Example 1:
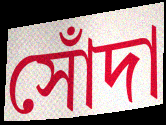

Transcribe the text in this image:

সোঁদা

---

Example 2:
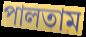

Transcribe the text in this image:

পালতাম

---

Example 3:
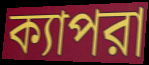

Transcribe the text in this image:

ক্যাপরা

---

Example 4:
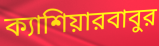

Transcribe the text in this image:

ক্যাশিয়ারবাবুর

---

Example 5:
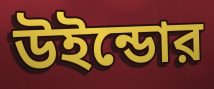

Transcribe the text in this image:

উইন্ডোর